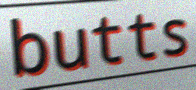
butts